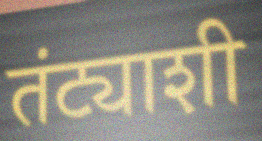
तंट्याशी